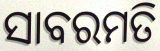
ସାବରମତି